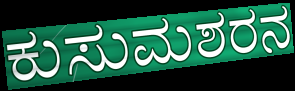
ಕುಸುಮಶರನ